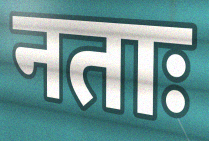
नताः